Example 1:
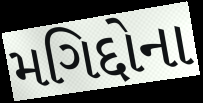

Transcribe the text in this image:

મગિદ્દોના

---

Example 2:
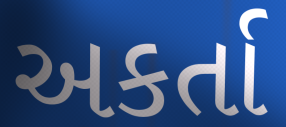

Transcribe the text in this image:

અકર્તા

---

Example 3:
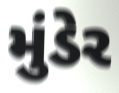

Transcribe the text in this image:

મુંડેર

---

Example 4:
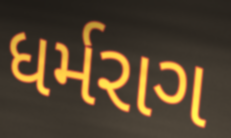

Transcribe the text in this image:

ધર્મરાગ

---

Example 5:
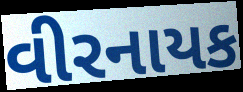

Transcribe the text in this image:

વીરનાયક